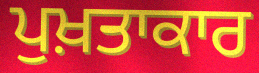
ਪੁਖ਼ਤਾਕਾਰ